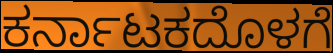
ಕರ್ನಾಟಕದೊಳಗೆ